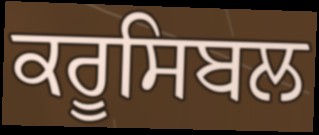
ਕਰੂਸਿਬਲ